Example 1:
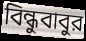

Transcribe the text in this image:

বিন্ধুবাবুর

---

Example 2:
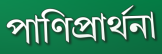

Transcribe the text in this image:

পাণিপ্রার্থনা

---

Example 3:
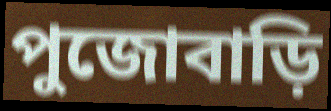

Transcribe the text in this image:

পুজোবাড়ি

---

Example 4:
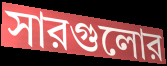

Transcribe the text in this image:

সারগুলোর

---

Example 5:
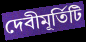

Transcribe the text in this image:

দেবীমূর্তিটি